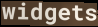
widgets